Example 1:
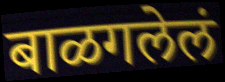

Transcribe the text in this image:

बाळगलेलं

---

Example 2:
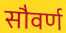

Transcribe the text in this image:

सौवर्ण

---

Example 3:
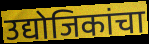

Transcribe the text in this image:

उद्योजिकांचा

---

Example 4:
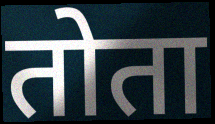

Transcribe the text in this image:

तोता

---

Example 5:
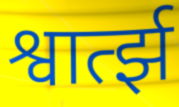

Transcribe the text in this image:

श्वार्त्झ